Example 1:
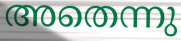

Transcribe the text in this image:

അതെന്നു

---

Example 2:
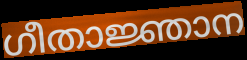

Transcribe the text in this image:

ഗീതാജ്ഞാന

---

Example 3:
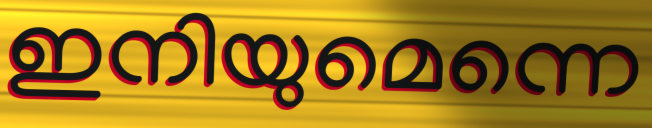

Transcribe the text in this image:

ഇനിയുമെന്നെ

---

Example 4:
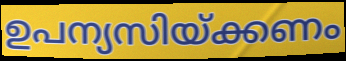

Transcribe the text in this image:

ഉപന്യസിയ്ക്കണം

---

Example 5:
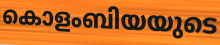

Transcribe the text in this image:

കൊളംബിയയുടെ